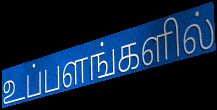
உப்பளங்களில்